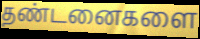
தண்டனைகளை